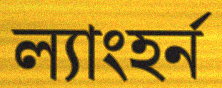
ল্যাংহর্ন